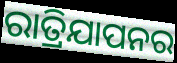
ରାତ୍ରିଯାପନର